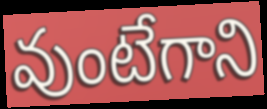
వుంటేగాని